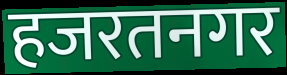
हजरतनगर